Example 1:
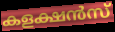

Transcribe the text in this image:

കളക്ഷൻസ്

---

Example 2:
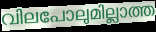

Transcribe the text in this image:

വിലപോലുമില്ലാത്ത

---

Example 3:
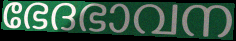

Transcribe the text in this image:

ഭേദഭാവന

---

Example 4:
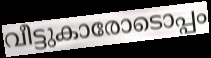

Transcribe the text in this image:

വീട്ടുകാരോടൊപ്പം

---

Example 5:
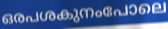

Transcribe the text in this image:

ഒരപശകുനംപോലെ